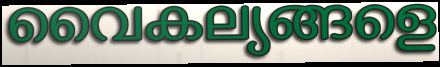
വൈകല്യങ്ങളെ